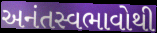
અનંતસ્વભાવોથી